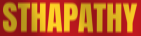
STHAPATHY